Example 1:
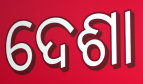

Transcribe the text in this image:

ଦେଶା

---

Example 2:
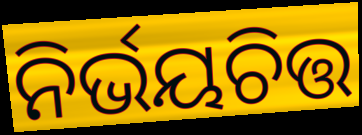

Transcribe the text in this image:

ନିର୍ଭୟଚିତ୍ତ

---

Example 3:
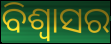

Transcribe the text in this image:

ବିଶ୍ବାସର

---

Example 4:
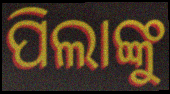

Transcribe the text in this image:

ପିଲାଙ୍କୁ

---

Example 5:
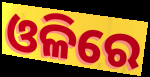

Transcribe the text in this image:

ଓଳିରେ